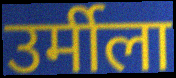
उर्मीला